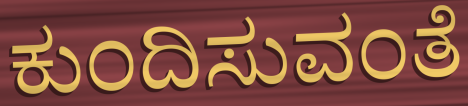
ಕುಂದಿಸುವಂತೆ